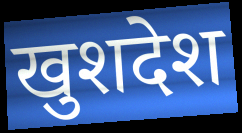
खुशदेश